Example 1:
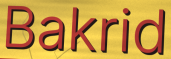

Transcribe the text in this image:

Bakrid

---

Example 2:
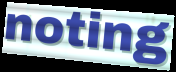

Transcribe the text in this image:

noting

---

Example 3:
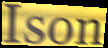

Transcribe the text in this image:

Ison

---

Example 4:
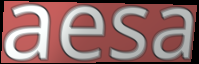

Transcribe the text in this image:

aesa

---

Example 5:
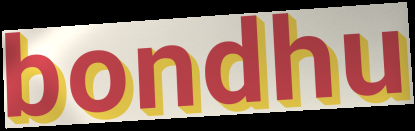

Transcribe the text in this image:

bondhu